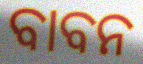
ବାବନ